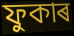
ফুকাৰ